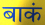
बाकं